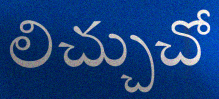
లిచ్చుచో